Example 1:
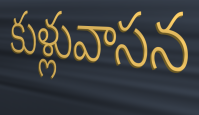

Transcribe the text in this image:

కుళ్లువాసన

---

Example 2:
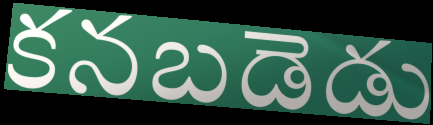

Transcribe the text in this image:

కనబడెడు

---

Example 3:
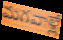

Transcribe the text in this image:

మగవాళ్లే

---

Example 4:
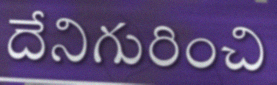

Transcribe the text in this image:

దేనిగురించి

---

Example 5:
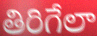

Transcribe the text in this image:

తిరిగేలా